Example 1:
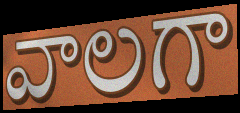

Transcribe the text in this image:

వాలగా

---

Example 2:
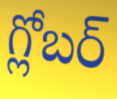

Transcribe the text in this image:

గ్లోబర్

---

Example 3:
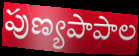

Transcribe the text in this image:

పుణ్యపాపాల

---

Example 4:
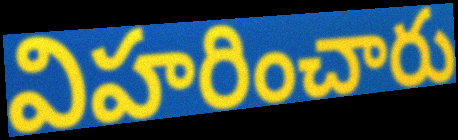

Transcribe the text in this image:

విహరించారు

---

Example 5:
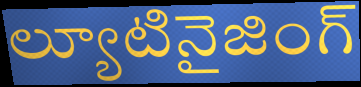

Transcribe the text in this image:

ల్యూటినైజింగ్